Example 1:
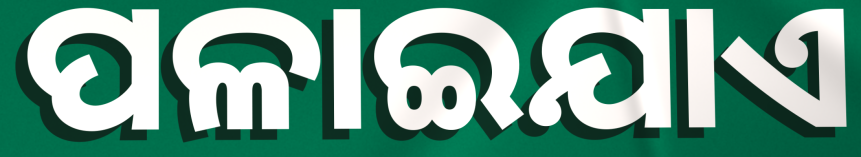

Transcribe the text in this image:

ପଳାଇଯାଏ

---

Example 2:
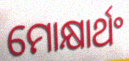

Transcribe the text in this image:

ମୋକ୍ଷାର୍ଥଂ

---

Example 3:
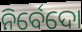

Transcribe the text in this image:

ନିର୍ବେଦୋ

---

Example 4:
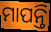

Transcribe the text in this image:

ମାପନ୍ତି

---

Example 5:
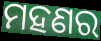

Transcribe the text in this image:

ମହଣର